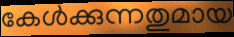
കേൾക്കുന്നതുമായ